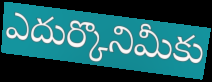
ఎదుర్కొనిమీకు